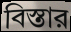
বিস্তার